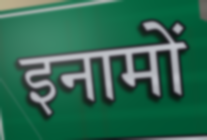
इनामों